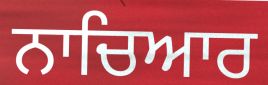
ਨਾਚਿਆਰ